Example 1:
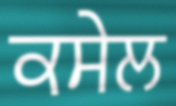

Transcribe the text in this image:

ਕਸੇਲ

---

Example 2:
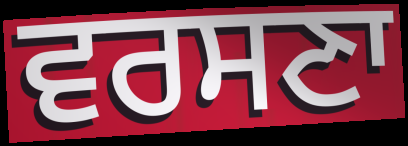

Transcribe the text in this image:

ਵਰਸਣਾ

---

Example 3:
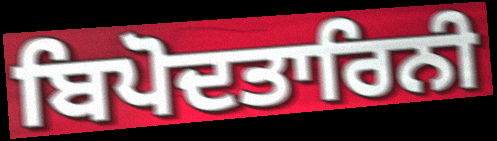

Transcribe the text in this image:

ਬਿਪੋਦਤਾਰਿਨੀ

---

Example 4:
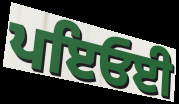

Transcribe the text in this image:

ਪਇਓਈ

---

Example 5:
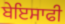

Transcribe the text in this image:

ਬੇਇਸਾਫੀ